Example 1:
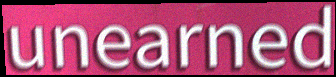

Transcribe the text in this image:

unearned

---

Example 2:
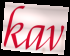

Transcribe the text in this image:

kav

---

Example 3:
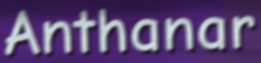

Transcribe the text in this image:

Anthanar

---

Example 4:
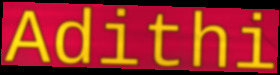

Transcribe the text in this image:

Adithi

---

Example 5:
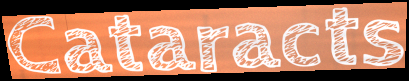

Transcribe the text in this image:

Cataracts